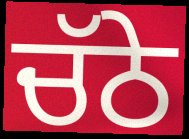
ਚੱਠੇ